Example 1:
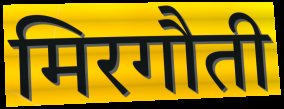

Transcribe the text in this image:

मिरगौती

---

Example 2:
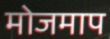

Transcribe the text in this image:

मोजमाप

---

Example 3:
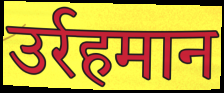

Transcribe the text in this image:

उर्रहमान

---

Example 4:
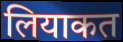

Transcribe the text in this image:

लियाकत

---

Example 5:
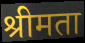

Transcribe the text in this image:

श्रीमता